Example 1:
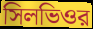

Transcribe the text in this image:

সিলভিওর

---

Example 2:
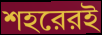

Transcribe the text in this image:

শহরেরই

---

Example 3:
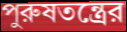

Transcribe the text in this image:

পুরুষতন্ত্রের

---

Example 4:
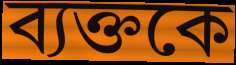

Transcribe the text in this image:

ব্যক্তকে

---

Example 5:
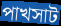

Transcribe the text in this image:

পাখসাট